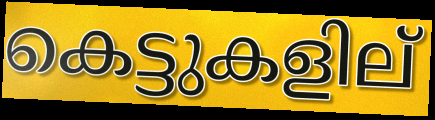
കെട്ടുകളില്